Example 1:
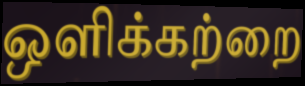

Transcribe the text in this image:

ஒளிக்கற்றை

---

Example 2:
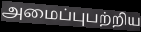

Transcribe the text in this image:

அமைப்புபற்றிய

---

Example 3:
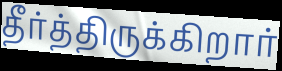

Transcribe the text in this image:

தீர்த்திருக்கிறார்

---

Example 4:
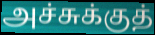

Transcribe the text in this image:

அச்சுக்குத்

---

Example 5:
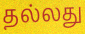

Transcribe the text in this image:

தல்லது